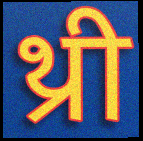
थ्री